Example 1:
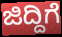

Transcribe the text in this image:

ಜಿದ್ದಿಗೆ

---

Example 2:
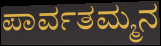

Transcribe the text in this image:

ಪಾರ್ವತಮ್ಮನ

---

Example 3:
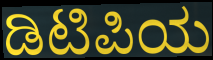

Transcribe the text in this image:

ಡಿಟಿಪಿಯ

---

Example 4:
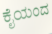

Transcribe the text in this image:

ಕೈಯಂದ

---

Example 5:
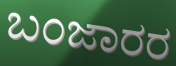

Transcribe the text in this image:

ಬಂಜಾರರ